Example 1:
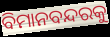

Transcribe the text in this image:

ବିମାନବନ୍ଦରକୁ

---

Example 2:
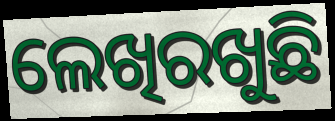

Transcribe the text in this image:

ଲେଖିରଖୁଛି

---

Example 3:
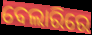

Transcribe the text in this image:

ବେଲାରିରେ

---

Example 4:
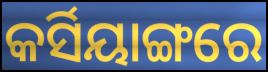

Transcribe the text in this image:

କର୍ସିୟାଙ୍ଗରେ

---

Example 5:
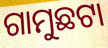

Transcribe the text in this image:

ଗାମୁଛଟା